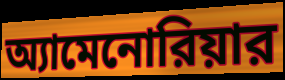
অ্যামেনোরিয়ার